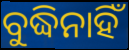
ବୁଦ୍ଧିନାହିଁ